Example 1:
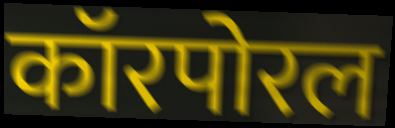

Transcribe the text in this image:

कॉरपोरल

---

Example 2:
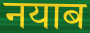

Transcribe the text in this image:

नयाब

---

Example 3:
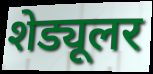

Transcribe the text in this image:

शेड्यूलर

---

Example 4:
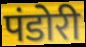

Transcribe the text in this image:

पंडोरी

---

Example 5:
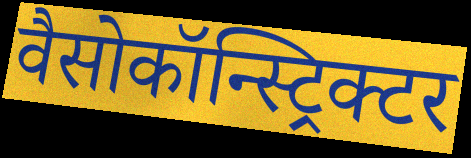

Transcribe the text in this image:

वैसोकॉन्स्ट्रिक्टर